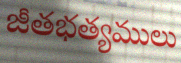
జీతభత్యములు